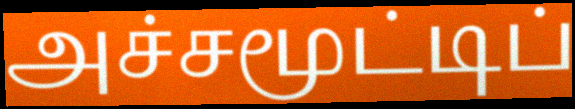
அச்சமூட்டிப்